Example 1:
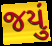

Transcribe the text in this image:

જયું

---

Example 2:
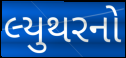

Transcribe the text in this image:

લ્યુથરનો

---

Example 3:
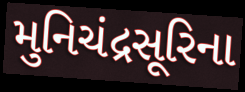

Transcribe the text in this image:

મુનિચંદ્રસૂરિના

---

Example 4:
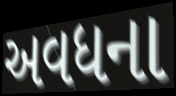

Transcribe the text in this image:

અવધના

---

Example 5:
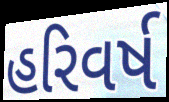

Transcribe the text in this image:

હરિવર્ષ